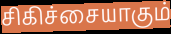
சிகிச்சையாகும்